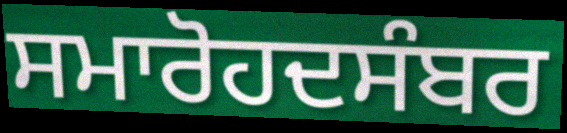
ਸਮਾਰੋਹਦਸੰਬਰ